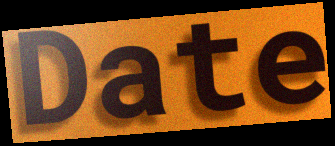
Date